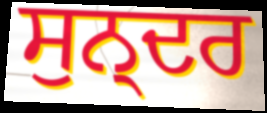
ਸੁਨ੍ਦਰ